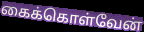
கைக்கொள்வேன்